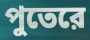
পুতেরে